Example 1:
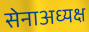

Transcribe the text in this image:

सेनाअध्यक्ष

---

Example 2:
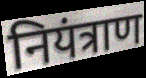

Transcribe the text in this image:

नियंत्राण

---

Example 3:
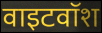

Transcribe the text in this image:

वाइटवॉश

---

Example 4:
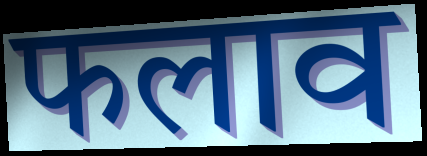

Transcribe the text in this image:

फलाव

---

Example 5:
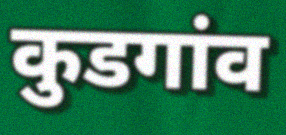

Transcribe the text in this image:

कुडगांव